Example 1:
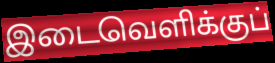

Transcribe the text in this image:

இடைவெளிக்குப்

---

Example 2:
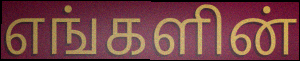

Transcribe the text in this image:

எங்களின்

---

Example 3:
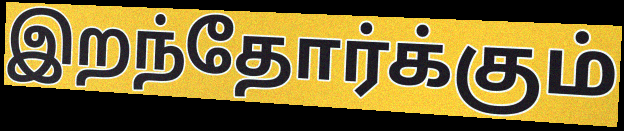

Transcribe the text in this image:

இறந்தோர்க்கும்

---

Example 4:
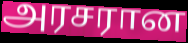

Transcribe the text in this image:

அரசரான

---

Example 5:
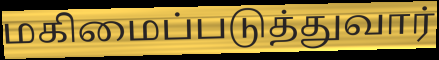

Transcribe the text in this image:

மகிமைப்படுத்துவார்